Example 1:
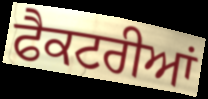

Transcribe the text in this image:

ਫੈਕਟਰੀਆਂ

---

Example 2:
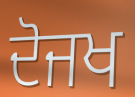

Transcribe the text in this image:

ਦੋਜਖ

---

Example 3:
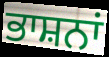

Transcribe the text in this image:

ਭਾਸ਼ਨਾਂ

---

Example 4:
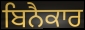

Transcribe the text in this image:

ਬਿਨੈਕਾਰ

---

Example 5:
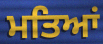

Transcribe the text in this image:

ਮਤਿਆਂ